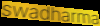
swadharma